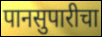
पानसुपारीचा